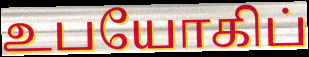
உபயோகிப்